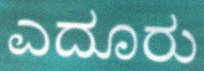
ಎದೂರು